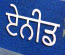
ਏਨੀਡ